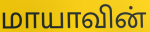
மாயாவின்